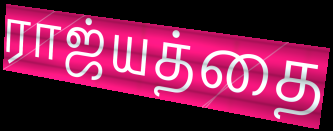
ராஜ்யத்தை